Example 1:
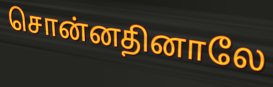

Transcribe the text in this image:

சொன்னதினாலே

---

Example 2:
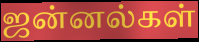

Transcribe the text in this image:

ஜன்னல்கள்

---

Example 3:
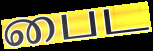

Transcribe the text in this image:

பைட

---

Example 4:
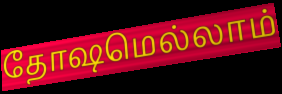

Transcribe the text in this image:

தோஷமெல்லாம்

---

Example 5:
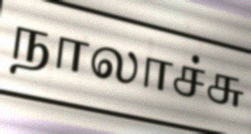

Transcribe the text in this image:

நாலாச்சு